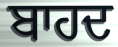
ਬਾਹਦ